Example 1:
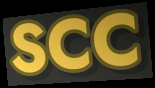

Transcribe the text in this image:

SCC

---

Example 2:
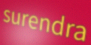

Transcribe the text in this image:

surendra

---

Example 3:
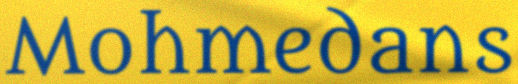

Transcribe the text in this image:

Mohmedans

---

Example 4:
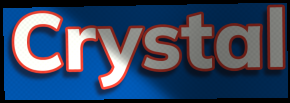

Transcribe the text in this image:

Crystal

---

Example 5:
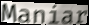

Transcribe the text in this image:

Maniar